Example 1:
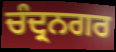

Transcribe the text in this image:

ਚੰਦ੍ਰਨਗਰ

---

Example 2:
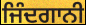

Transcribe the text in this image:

ਜਿੰਦਗਾਨੀ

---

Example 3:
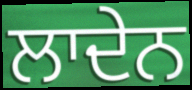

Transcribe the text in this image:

ਲਾਦੇਨ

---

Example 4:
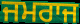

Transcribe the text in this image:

ਜਮਰਾਜ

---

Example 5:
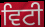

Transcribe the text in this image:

ਵਿਟੀ